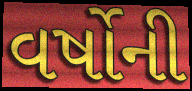
વર્ષોની